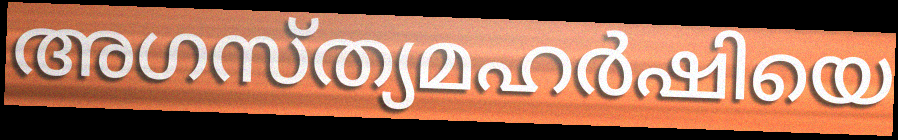
അഗസ്ത്യമഹർഷിയെ